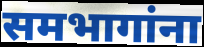
समभागांना